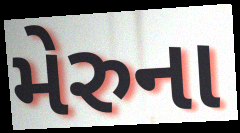
મેરુના